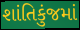
શાંતિકુંજમાં